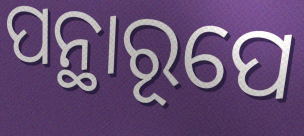
ପନ୍ଥାରୂପେ